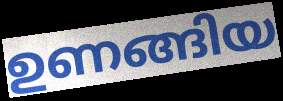
ഉണങ്ങിയ